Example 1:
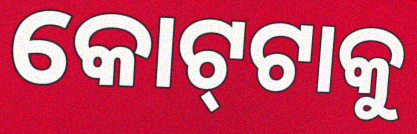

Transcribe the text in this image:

କୋଟ୍‌ଟାକୁ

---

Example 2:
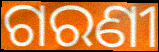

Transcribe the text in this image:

ଗରଣୀ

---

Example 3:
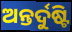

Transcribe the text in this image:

ଅନ୍ତର୍ଦୁଷ୍ଟି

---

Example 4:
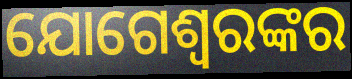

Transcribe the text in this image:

ଯୋଗେଶ୍ଵରଙ୍କର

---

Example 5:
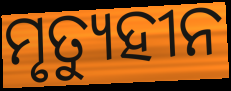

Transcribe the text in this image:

ମୃତ୍ୟୁହୀନ